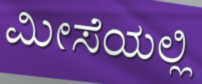
ಮೀಸೆಯಲ್ಲಿ